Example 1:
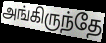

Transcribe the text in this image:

அங்கிருந்தே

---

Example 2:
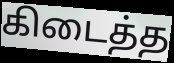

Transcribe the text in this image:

கிடைத்த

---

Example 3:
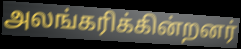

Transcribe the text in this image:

அலங்கரிக்கின்றனர்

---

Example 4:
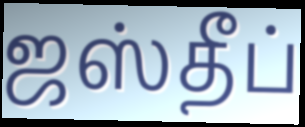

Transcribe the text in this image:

ஜஸ்தீப்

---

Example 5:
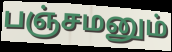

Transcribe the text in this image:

பஞ்சமனும்